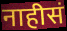
नाहीसं